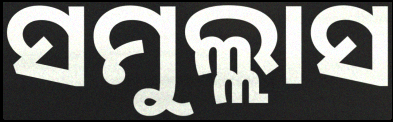
ସମୁଲ୍ଲାସ